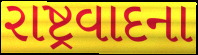
રાષ્ટ્રવાદના